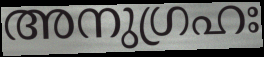
അനുഗ്രഹഃ